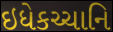
ઇધેકચ્ચાનિ